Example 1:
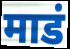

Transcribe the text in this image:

माडं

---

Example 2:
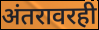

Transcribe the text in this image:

अंतरावरही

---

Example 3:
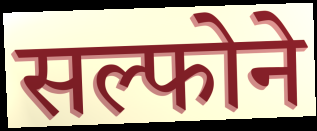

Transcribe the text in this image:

सल्फोने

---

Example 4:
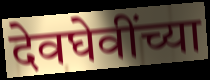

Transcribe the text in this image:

देवघेवींच्या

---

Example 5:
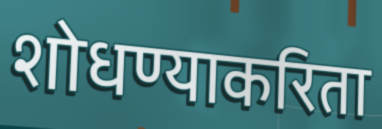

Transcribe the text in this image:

शोधण्याकरिता